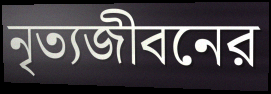
নৃত্যজীবনের